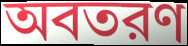
অবতরণ